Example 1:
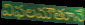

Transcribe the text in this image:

విఫలమౌతూనే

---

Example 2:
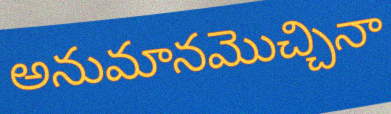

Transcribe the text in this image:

అనుమానమొచ్చినా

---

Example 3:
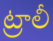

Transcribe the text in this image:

ట్రాలీ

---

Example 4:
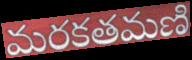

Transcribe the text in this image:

మరకతమణి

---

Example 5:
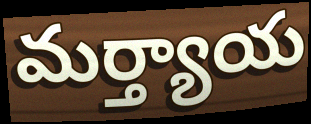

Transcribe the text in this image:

మర్త్యాయ